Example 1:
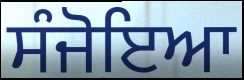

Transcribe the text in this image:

ਸੰਜੋਇਆ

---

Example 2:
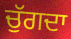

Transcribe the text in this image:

ਚੁੱਗਦਾ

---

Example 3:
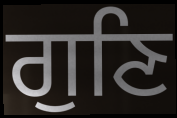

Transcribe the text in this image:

ਗੁਣਿ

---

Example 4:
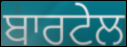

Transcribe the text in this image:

ਬਾਰਟੇਲ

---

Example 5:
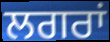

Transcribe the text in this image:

ਲਗਰਾਂ